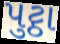
પુટ્ઠા